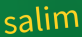
salim